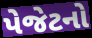
પેજેટનો